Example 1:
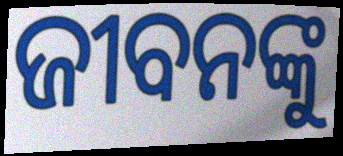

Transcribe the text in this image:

ଜୀବନଙ୍କୁ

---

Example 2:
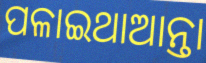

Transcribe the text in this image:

ପଳାଇଥାଆନ୍ତା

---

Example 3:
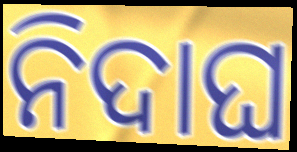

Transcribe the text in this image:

ନିଦାଘ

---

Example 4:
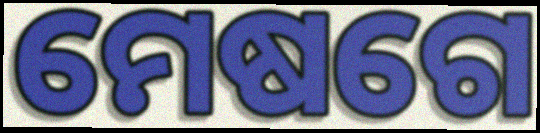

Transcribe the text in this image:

ମେଷଗେ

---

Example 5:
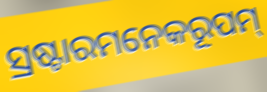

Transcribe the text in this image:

ସ୍ରଷ୍ଟାରମନେକରୂପମ୍